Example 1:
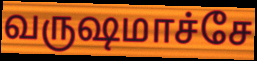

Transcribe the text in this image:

வருஷமாச்சே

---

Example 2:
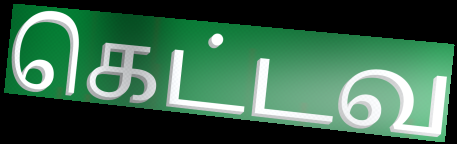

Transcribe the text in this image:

கெட்டவ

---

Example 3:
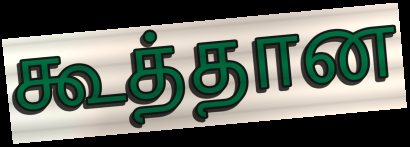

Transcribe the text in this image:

கூத்தான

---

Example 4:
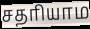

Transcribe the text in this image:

சதரியாம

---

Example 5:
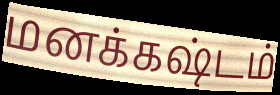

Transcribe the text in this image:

மனக்கஷ்டம்